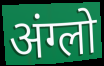
अंग्लो